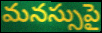
మనస్సుపై